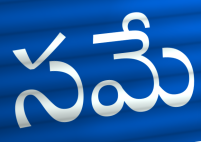
సమే